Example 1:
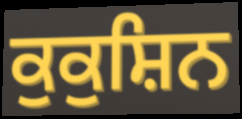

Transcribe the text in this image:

ਕੁਕੁਸ਼ਿਨ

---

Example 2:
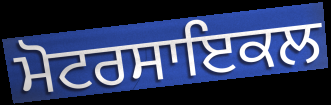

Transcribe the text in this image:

ਮੋਟਰਸਾਇਕਲ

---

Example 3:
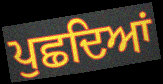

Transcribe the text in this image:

ਪੁਛਦਿਆਂ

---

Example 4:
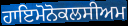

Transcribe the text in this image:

ਹਾਇਮੋਨੋਕਲਸੀਅਮ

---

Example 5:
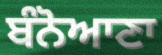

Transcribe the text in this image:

ਬੰਨੋਆਣਾ